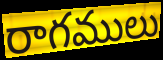
రాగములు